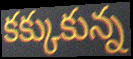
కక్కుకున్న